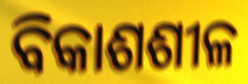
ବିକାଶଶୀଳ